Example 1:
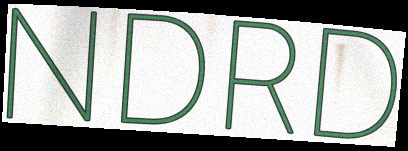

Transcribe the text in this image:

NDRD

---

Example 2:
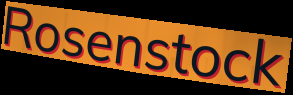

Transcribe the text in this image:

Rosenstock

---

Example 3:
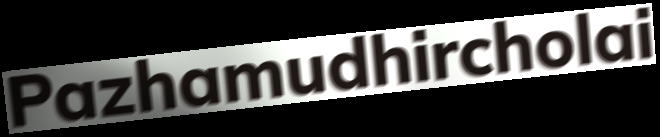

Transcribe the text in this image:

Pazhamudhircholai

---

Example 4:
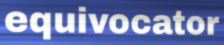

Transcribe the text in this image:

equivocator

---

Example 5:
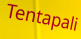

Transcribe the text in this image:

Tentapali